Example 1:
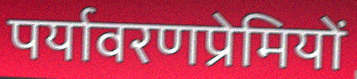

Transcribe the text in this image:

पर्यावरणप्रेमियों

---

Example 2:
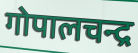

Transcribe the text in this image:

गोपालचन्द्र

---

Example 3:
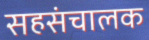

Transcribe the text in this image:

सहसंचालक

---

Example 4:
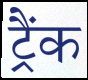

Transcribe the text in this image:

ट्रैंक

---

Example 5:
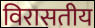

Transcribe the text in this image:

विरासतीय